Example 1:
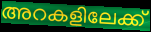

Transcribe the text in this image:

അറകളിലേക്ക്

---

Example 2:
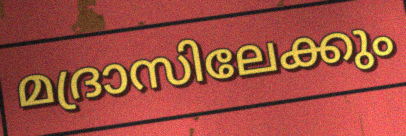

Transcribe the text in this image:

മദ്രാസിലേക്കും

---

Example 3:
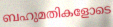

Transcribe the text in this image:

ബഹുമതികളോടെ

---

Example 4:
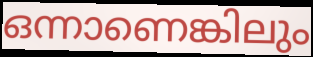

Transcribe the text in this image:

ഒന്നാണെങ്കിലും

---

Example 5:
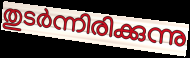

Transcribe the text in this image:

തുടർന്നിരിക്കുന്നു